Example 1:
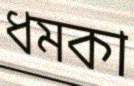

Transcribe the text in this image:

ধমকা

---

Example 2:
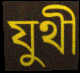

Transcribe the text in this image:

যুথী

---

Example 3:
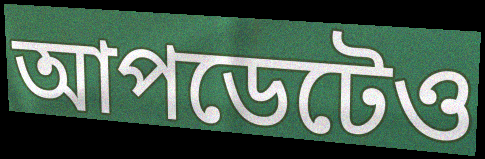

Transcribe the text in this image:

আপডেটেও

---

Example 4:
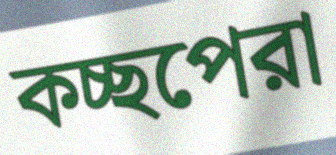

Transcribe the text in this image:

কচ্ছপেরা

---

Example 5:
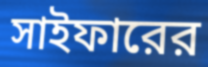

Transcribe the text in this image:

সাইফারের